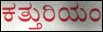
ಕತ್ತುರಿಯಂ